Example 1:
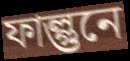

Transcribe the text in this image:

ফাল্গুনে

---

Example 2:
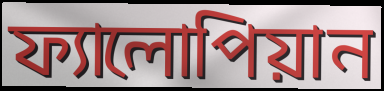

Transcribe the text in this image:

ফ্যালোপিয়ান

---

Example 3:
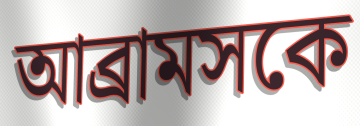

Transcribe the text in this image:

আব্রামসকে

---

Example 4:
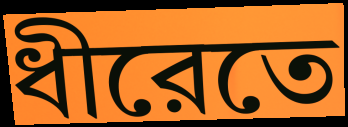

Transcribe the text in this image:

ধীরেতে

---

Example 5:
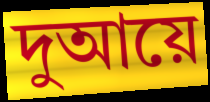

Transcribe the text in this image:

দুআয়ে